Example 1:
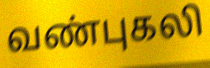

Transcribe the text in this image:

வண்புகலி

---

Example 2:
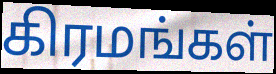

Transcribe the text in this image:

கிரமங்கள்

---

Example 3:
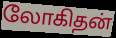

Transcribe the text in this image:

லோகிதன்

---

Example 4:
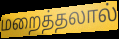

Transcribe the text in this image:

மறைத்தலால்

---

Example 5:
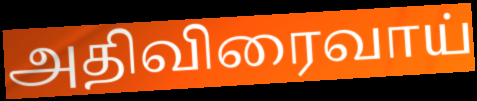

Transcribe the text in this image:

அதிவிரைவாய்